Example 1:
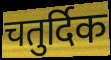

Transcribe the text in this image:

चतुर्दिक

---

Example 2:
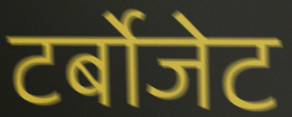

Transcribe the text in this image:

टर्बोजेट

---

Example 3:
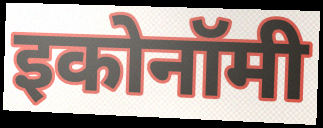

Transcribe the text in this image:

इकोनॉमी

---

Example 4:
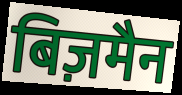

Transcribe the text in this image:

बिज़मैन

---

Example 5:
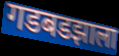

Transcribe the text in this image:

गडबडझाला